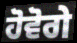
ਹੋਵੋਗੇ